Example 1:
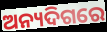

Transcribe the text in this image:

ଅନ୍ୟଦିଗରେ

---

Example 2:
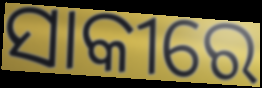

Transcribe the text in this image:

ସାକୀରେ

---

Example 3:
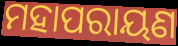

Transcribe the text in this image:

ମହାପରାୟଣ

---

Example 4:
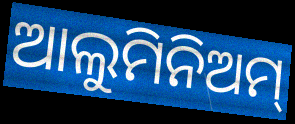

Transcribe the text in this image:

ଆଲୁମିନିଅମ୍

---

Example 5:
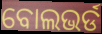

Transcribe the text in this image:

ବୋଲଭର୍ଡ